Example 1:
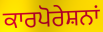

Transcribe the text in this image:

ਕਾਰਪੋਰੇਸ਼ਨਾਂ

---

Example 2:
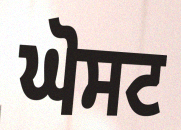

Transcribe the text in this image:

ਘੋਸਟ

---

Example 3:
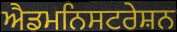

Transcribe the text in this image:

ਐਡਮਨਿਸਟਰੇਸ਼ਨ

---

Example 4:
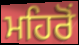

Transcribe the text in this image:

ਮਹਿਰੋਂ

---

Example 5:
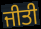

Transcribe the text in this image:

ਜੀਤੀ